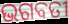
ଭଗବତୀ